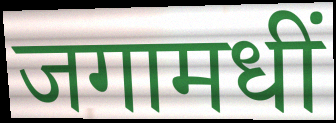
जगामधीं